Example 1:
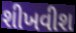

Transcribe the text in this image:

શીખવીશ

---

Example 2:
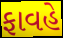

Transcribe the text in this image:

ફાવહે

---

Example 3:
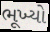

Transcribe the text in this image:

ભૂખ્યો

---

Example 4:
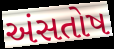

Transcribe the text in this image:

અંસતોષ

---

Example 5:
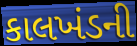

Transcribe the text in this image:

કાલખંડની